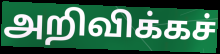
அறிவிக்கச்